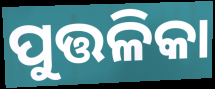
ପୁତ୍ତଳିକା